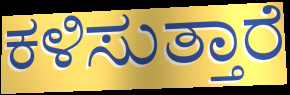
ಕಳಿಸುತ್ತಾರೆ